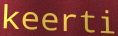
keerti